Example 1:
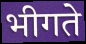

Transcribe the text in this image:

भीगते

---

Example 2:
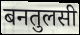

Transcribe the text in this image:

बनतुलसी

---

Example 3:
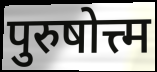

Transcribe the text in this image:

पुरुषोत्त्म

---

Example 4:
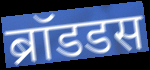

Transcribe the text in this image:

ब्रॉडडस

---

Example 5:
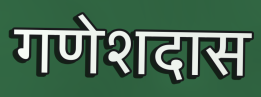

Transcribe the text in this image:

गणेशदास